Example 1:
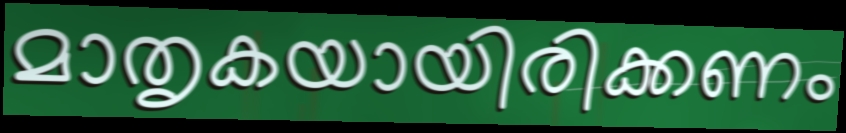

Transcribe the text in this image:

മാതൃകയായിരിക്കണം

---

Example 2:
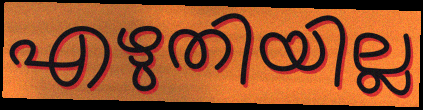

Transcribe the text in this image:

എഴുതിയില്ല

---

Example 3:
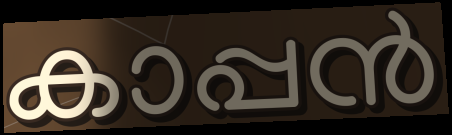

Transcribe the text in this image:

കാപ്പൻ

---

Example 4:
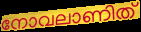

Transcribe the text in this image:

നോവലാണിത്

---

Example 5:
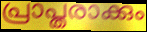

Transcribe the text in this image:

പ്രാപ്തരാക്കും